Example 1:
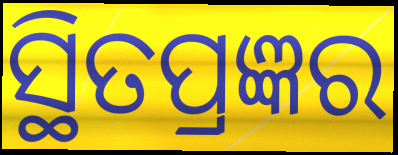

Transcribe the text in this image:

ସ୍ଥିତପ୍ରଜ୍ଞର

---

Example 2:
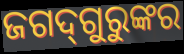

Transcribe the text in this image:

ଜଗଦ୍‌ଗୁରୁଙ୍କର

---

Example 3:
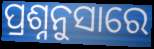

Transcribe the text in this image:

ପ୍ରଶ୍ନନୁସାରେ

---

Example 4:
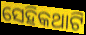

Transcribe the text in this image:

ସେହିକଥାଟି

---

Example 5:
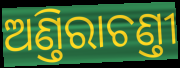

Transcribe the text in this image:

ଅଣ୍ତିରାଚଣ୍ତୀ